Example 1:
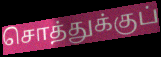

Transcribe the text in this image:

சொத்துக்குப்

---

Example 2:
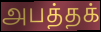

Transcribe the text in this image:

அபத்தக்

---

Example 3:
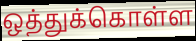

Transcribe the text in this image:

ஒத்துக்கொள்ள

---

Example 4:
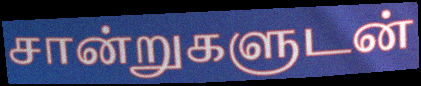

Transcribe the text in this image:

சான்றுகளுடன்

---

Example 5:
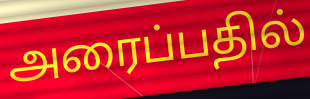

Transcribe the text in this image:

அரைப்பதில்